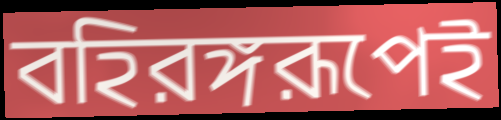
বহিরঙ্গরূপেই